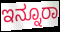
ಇನ್ನೂರಾ